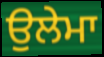
ਉਲੇਮਾ